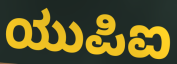
ಯುಪಿಐ